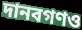
দানবগণও